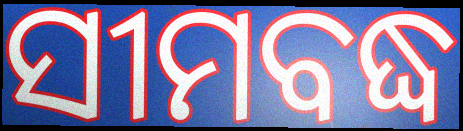
ସୀମବଦ୍ଧ